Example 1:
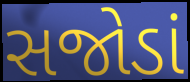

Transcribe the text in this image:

સજોડાં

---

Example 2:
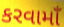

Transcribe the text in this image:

કરવામાઁ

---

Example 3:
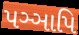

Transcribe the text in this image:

પઞ્ઞાપિ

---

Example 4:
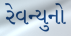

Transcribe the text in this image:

રેવન્યુનો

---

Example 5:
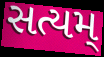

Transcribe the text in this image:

સત્યમ્